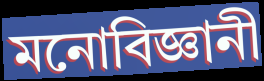
মনোবিজ্ঞানী